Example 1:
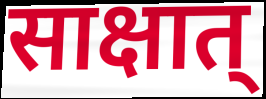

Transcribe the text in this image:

साक्षात्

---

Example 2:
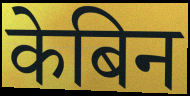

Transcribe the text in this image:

केबिन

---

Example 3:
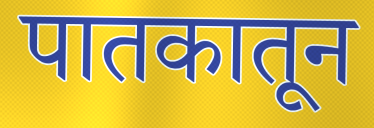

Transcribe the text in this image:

पातकातून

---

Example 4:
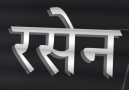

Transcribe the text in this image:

रसेन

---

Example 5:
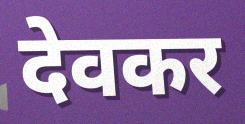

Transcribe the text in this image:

देवकर